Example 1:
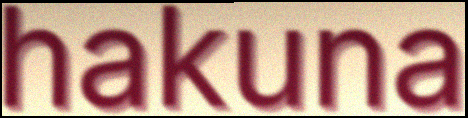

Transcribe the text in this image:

hakuna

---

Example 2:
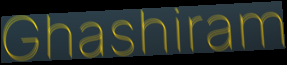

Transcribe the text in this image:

Ghashiram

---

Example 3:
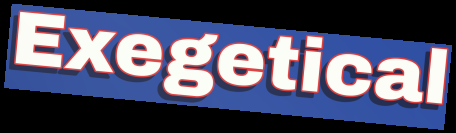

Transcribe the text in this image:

Exegetical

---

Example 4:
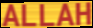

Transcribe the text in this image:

ALLAH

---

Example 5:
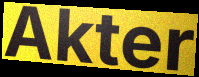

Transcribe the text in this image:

Akter